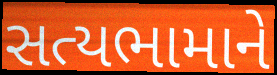
સત્યભામાને